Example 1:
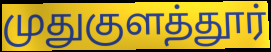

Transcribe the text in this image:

முதுகுளத்தூர்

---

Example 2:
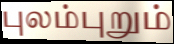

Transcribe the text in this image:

புலம்புறும்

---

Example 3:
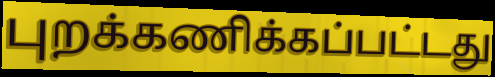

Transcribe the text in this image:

புறக்கணிக்கப்பட்டது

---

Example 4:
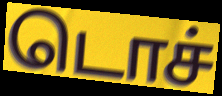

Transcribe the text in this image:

டொச்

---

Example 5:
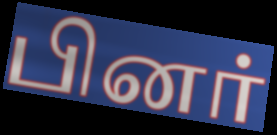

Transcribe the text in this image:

பினர்